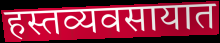
हस्तव्यवसायात